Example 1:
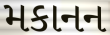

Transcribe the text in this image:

મકાનન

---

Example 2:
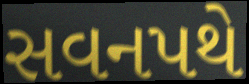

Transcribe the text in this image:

સવનપથે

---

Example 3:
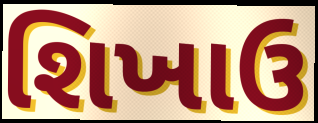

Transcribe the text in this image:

શિખાઉ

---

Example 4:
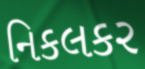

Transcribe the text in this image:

નિકલકર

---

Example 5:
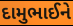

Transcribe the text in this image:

દામુભાઈને